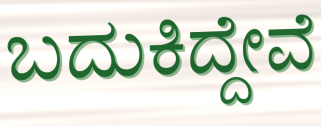
ಬದುಕಿದ್ದೇವೆ